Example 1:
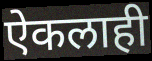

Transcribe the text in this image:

ऐकलाही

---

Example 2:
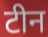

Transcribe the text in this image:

टीन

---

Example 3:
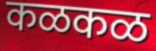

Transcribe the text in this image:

कळकळ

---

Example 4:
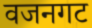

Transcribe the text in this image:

वजनगट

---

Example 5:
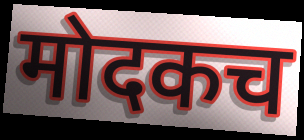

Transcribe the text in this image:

मोदकच